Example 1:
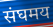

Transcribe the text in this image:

संघमय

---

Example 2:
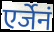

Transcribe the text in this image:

एर्जेनं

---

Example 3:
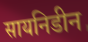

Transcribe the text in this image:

सायनिडीन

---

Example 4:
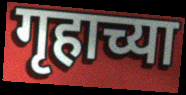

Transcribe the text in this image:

गृहाच्या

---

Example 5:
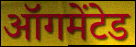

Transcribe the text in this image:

ऑगमेंटेड